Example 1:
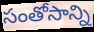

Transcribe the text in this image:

సంతోసాన్ని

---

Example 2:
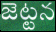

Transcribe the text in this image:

జెట్టన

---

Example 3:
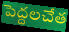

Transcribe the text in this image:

పెద్దలచేత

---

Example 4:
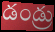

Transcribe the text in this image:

డండ్రు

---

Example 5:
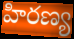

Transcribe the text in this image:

హిరణ్య